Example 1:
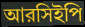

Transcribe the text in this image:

আরসিইপি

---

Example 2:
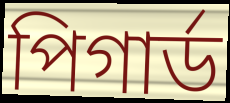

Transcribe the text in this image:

পিগার্ড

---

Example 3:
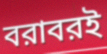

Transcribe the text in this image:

বরাবরই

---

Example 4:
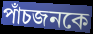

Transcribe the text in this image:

পাঁচজনকে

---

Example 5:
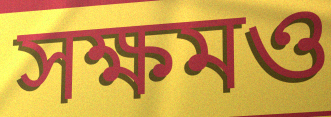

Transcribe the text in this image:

সক্ষমও